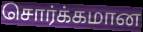
சொர்க்கமான